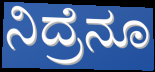
ನಿದ್ರೆನೂ